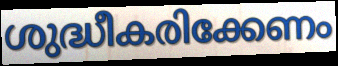
ശുദ്ധീകരിക്കേണം